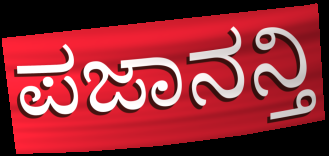
ಪಜಾನನ್ತಿ